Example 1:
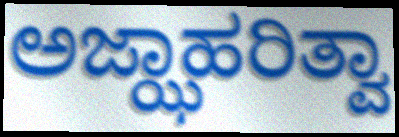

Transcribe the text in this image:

ಅಜ್ಝಾಹರಿತ್ವಾ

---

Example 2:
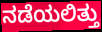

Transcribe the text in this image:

ನಡೆಯಲಿತ್ತು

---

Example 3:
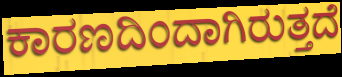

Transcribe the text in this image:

ಕಾರಣದಿಂದಾಗಿರುತ್ತದೆ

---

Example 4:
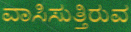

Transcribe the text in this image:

ವಾಸಿಸುತ್ತಿರುವ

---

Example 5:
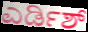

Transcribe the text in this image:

ಎರ್ಡಿಶ್